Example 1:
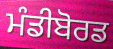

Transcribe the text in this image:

ਮੰਡੀਬੋਰਡ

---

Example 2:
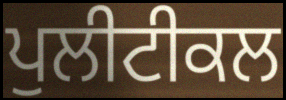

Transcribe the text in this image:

ਪੁਲੀਟੀਕਲ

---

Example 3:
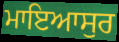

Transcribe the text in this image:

ਮਾਇਆਸੁਰ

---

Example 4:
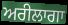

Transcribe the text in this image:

ਅਰੀਲਾਗਾ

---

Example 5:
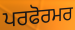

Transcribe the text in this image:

ਪਰਫੋਰਮਰ